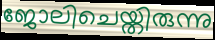
ജോലിചെയ്തിരുന്നു